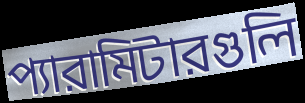
প্যারামিটারগুলি